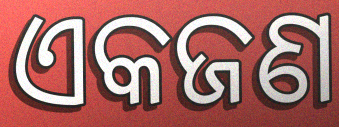
ଏକଜଣ